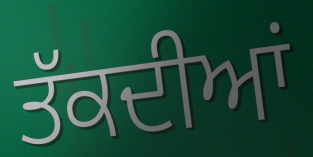
ਤੱਕਦੀਆਂ